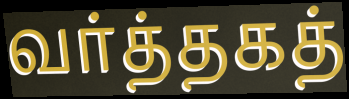
வர்த்தகத்